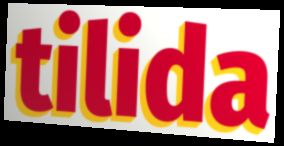
tilida